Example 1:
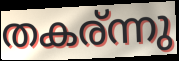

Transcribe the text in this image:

തകര്ന്നു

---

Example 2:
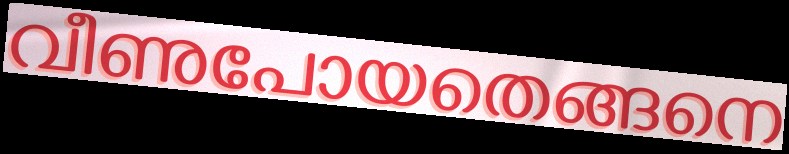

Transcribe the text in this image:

വീണുപോയതെങ്ങനെ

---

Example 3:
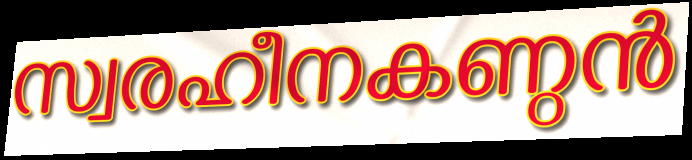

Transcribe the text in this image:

സ്വരഹീനകണ്ഠൻ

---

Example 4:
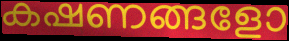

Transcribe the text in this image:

കഷണങ്ങളോ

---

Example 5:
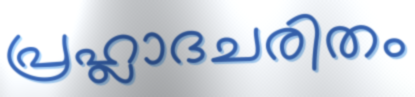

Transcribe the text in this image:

പ്രഹ്ലാദചരിതം